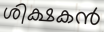
ശിക്ഷകൻ